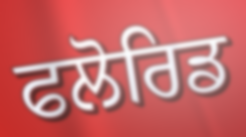
ਫਲੋਰਿਡ